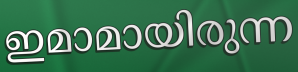
ഇമാമായിരുന്ന